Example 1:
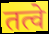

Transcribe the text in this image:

तत्वे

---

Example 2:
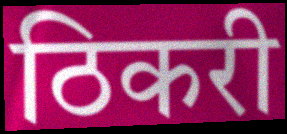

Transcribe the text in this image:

ठिकरी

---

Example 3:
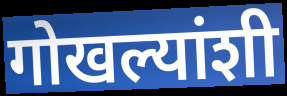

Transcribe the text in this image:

गोखल्यांशी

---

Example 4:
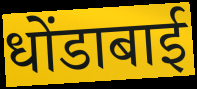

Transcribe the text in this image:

धोंडाबाई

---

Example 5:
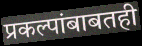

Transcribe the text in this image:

प्रकल्पांबाबतही